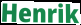
Henrik